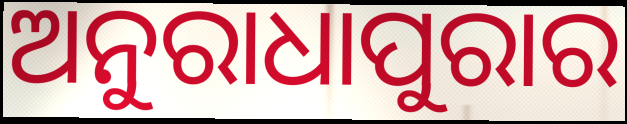
ଅନୁରାଧାପୁରାର